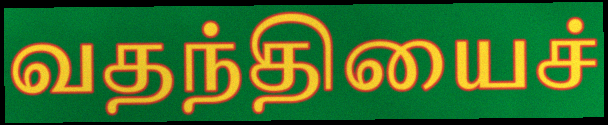
வதந்தியைச்